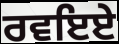
ਰਵਇਏ